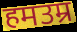
हमउम्र